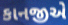
કાનજીએ